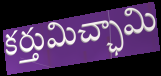
కర్తుమిచ్ఛామి